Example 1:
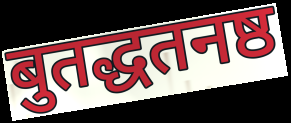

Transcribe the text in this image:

बुतद्धतनष्ठ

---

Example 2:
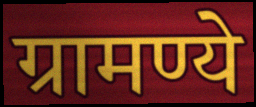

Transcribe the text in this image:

ग्रामण्ये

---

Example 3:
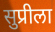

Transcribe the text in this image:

सुप्रीला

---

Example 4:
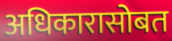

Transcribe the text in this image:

अधिकारासोबत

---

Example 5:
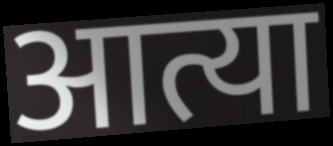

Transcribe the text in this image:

आत्या